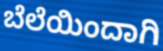
ಬೆಲೆಯಿಂದಾಗಿ